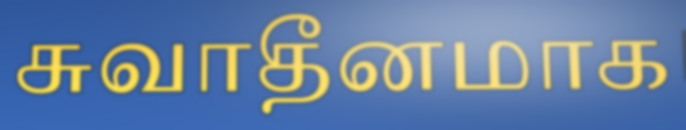
சுவாதீனமாக